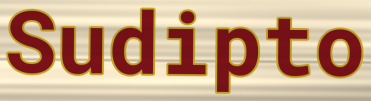
Sudipto